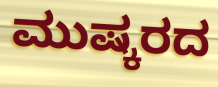
ಮುಷ್ಕರದ